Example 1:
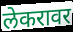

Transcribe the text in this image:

लेकरावर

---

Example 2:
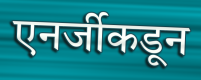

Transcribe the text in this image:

एनर्जीकडून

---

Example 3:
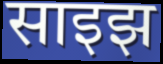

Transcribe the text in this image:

साइझ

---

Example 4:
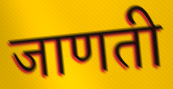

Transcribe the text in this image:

जाणती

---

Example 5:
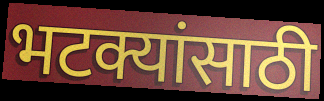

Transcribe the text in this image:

भटक्यांसाठी